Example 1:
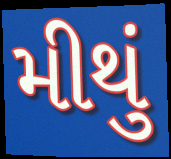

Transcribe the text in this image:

મીથું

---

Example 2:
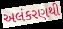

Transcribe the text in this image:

અલંકરણથી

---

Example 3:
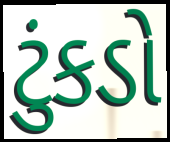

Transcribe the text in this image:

ટુંકડો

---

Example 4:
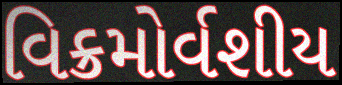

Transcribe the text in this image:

વિક્રમોર્વશીય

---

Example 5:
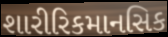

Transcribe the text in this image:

શારીરિકમાનસિક